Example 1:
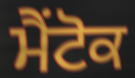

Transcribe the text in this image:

ਮੈਂਟੋਕ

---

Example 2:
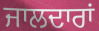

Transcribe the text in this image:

ਜਾਲਦਾਰਾਂ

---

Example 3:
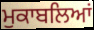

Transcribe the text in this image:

ਮੁਕਾਬਲਿਆਂ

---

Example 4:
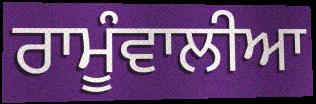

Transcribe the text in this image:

ਰਾਮੂੰਵਾਲੀਆ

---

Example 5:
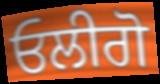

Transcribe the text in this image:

ਓਲੀਗੋ